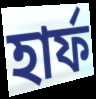
হার্ফ